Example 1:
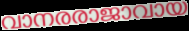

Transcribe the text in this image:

വാനരരാജാവായ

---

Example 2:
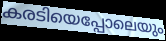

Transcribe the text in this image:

കരടിയെപ്പോലെയും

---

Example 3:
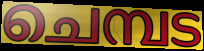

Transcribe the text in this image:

ചെമ്പട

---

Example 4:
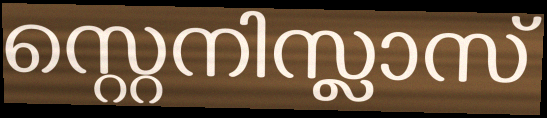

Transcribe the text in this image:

സ്റ്റെനിസ്ലാസ്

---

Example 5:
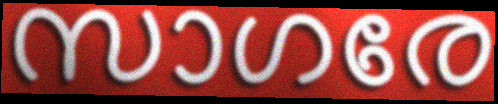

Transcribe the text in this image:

സാഗരേ